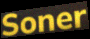
Soner